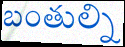
బంతుల్ని